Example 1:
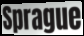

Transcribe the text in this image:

Sprague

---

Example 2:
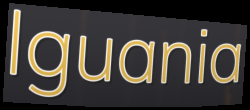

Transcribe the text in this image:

Iguania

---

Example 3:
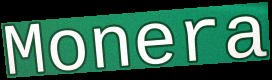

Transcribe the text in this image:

Monera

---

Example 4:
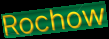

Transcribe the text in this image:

Rochow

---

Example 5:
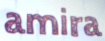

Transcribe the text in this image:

amira